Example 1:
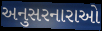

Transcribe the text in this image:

અનુસરનારાઓ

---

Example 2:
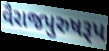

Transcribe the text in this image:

વૈરાજપુરુષરૂપ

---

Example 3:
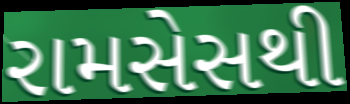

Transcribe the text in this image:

રામસેસથી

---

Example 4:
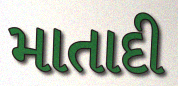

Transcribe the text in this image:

માતાદી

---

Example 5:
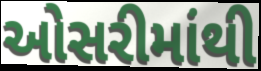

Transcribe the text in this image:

ઓસરીમાંથી